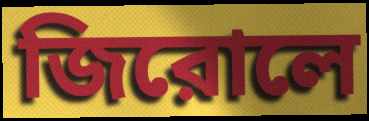
জিরোলে